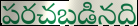
పరచబడినది